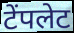
टेंपलेट